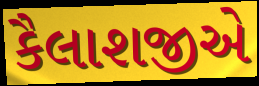
કૈલાશજીએ